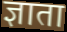
ज्ञाता